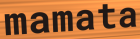
mamata